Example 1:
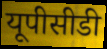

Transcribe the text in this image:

यूपीसीडी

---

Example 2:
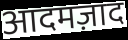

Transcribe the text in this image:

आदमज़ाद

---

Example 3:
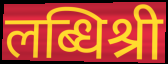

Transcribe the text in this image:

लब्धिश्री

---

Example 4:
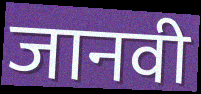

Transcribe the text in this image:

जानवी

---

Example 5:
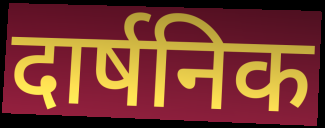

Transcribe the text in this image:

दार्षनिक